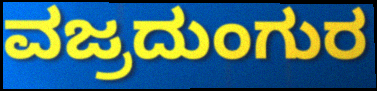
ವಜ್ರದುಂಗುರ